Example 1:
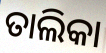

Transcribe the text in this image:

ତାଲିକା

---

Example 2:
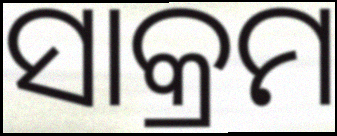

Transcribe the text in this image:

ସାକ୍ରମ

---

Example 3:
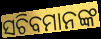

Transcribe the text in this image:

ସଚିବମାନଙ୍କ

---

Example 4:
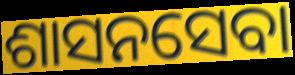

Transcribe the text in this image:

ଶାସନସେବା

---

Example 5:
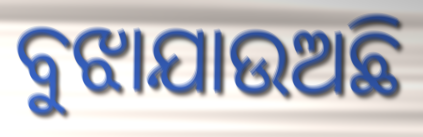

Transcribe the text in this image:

ବୁଝାଯାଉଅଛି